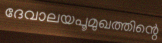
ദേവാലയപൂമുഖത്തിന്റെ